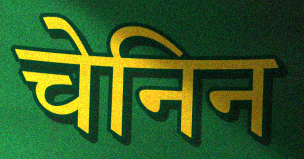
चेनिन